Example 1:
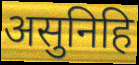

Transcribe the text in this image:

असुनिहि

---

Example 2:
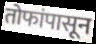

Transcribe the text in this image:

तोफांपासून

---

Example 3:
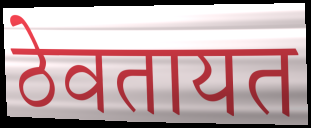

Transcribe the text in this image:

ठेवतायत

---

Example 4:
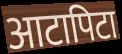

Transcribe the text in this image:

आटापिटा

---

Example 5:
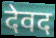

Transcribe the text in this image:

देवद